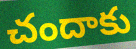
చందాకు